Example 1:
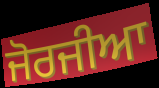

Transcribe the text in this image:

ਜੋਰਜੀਆ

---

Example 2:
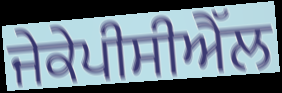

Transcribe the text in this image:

ਜੇਕੇਪੀਸੀਐੱਲ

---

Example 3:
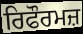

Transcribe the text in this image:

ਰਿਫੌਰਮਜ਼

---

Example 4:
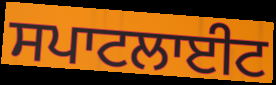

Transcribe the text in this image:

ਸਪਾਟਲਾਈਟ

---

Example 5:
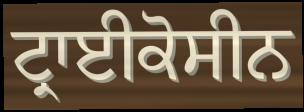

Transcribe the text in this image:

ਟ੍ਰਾਈਕੋਸੀਨ